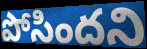
పోసిందని